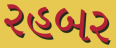
રહબર